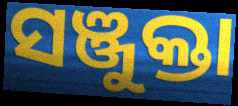
ସଞ୍ଜୁକ୍ତା